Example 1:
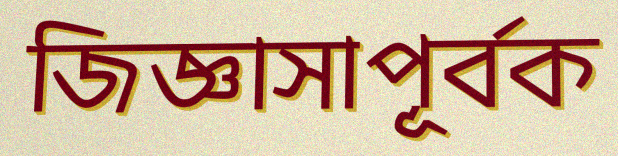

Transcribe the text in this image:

জিজ্ঞাসাপূর্বক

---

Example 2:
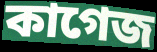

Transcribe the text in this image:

কাগেজ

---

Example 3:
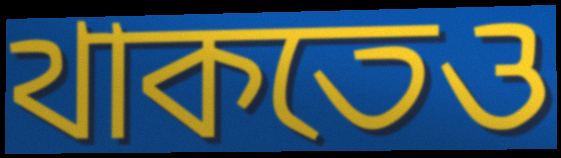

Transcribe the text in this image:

থাকতেও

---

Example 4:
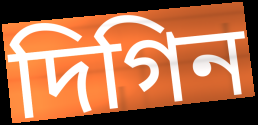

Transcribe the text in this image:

দিগিন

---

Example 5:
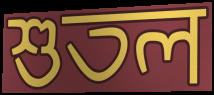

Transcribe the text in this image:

শুতল